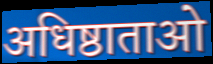
अधिष्ठाताओ